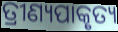
ତ୍ରୀଣ୍ୟପାକୃତ୍ୟ